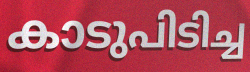
കാടുപിടിച്ച